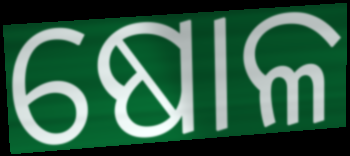
ଷୋଳ